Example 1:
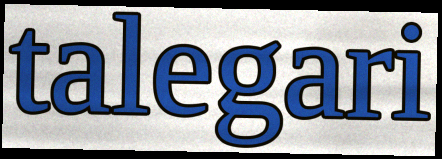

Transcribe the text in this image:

talegari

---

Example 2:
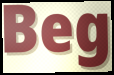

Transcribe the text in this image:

Beg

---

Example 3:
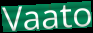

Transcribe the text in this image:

Vaato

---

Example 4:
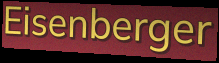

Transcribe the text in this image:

Eisenberger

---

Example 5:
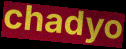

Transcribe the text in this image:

chadyo